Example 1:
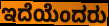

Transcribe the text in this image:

ಇದೆಯೆಂದರು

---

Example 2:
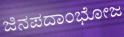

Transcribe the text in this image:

ಜಿನಪದಾಂಭೋಜ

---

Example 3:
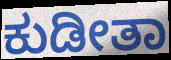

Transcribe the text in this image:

ಕುಡೀತಾ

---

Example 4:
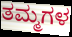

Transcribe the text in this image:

ತಮ್ಮಗಳ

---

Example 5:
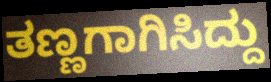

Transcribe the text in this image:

ತಣ್ಣಗಾಗಿಸಿದ್ದು